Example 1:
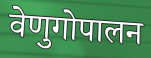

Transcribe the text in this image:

वेणुगोपालन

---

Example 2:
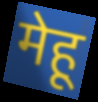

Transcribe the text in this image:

मेहू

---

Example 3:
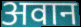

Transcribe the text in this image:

अवान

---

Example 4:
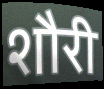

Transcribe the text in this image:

शौरी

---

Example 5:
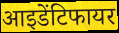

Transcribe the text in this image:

आइडेंटिफायर